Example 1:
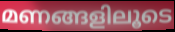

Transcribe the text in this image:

മണങ്ങളിലൂടെ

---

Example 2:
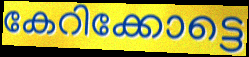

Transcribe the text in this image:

കേറിക്കോട്ടെ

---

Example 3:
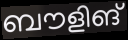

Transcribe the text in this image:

ബൗളിങ്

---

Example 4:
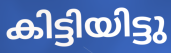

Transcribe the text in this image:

കിട്ടിയിട്ടു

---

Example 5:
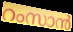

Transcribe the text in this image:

റംസാൻ